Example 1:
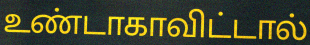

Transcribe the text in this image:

உண்டாகாவிட்டால்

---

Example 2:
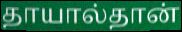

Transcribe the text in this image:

தாயால்தான்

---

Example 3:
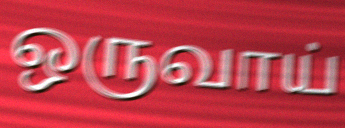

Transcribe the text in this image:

ஒருவாய்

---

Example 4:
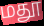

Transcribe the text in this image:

மதூ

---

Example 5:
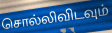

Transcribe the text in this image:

சொல்லிவிடவும்